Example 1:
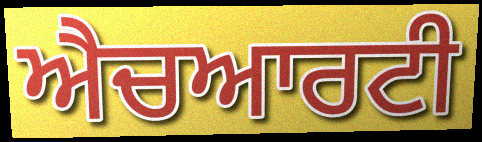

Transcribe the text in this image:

ਐਚਆਰਟੀ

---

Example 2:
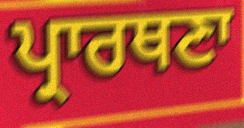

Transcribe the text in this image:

ਪ੍ਰਾਰਥਣਾ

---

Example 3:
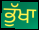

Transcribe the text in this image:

ਭੁੱਖਾ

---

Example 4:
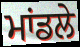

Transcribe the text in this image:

ਮਾਂਡਲੇ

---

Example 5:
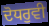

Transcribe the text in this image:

ਦੋਧਰੁਵੀ